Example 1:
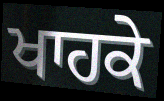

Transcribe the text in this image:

ਖਾਹਕੇ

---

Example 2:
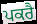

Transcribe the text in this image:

ਪਕਰੈ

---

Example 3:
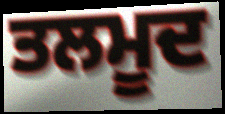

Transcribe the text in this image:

ਤਲਮੂਦ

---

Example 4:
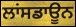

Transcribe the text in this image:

ਲਾਂਸਡਾਊਨ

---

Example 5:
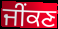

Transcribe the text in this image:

ਜੀਂਕਣ